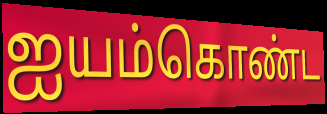
ஐயம்கொண்ட